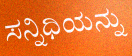
ಸನ್ನಿಧಿಯನ್ನು